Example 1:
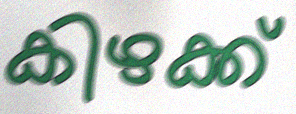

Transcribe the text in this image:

കിഴക്ക്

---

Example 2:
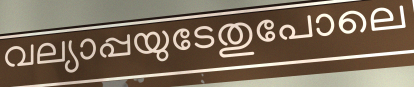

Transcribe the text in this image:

വല്യാപ്പയുടേതുപോലെ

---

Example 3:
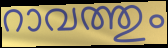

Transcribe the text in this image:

റാവത്തും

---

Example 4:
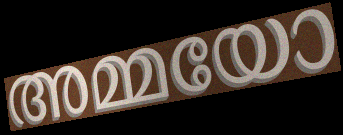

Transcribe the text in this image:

അമ്മയോ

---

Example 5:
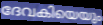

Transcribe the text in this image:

ദേവകിയെയും